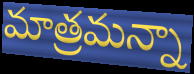
మాత్రమన్నా